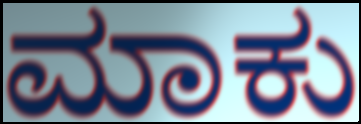
ಮಾಕು